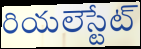
రియలెస్టేట్